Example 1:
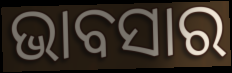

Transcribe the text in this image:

ଭାବସାର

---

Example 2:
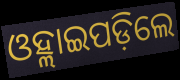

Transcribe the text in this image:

ଓହ୍ଲାଇପଡ଼ିଲେ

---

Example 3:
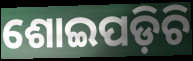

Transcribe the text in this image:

ଶୋଇପଡ଼ିଚି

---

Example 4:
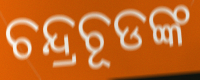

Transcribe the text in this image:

ଚନ୍ଦ୍ରଚୂଡଙ୍କ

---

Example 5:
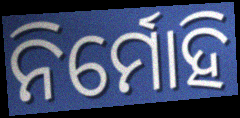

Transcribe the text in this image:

ନିର୍ମୋହି